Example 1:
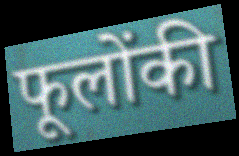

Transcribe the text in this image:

फूलोंकी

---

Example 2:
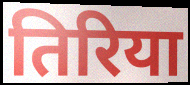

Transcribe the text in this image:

तिरिया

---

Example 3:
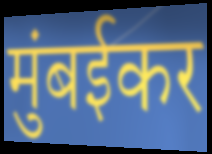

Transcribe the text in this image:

मुंबईकर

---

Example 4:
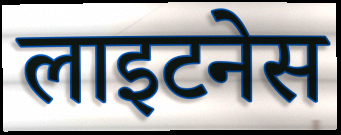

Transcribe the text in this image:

लाइटनेस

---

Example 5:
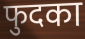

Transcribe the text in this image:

फुदका